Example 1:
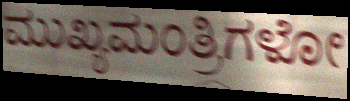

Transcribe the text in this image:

ಮುಖ್ಯಮಂತ್ರಿಗಳೋ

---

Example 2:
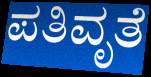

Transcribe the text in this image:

ಪತಿವೃತೆ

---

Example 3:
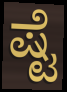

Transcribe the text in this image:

ಷ್ಟೆ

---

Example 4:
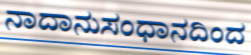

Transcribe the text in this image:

ನಾದಾನುಸಂಧಾನದಿಂದ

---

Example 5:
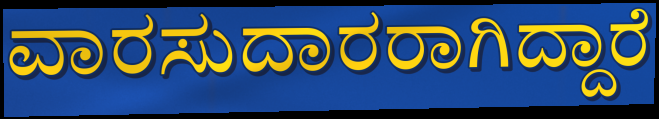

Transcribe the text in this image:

ವಾರಸುದಾರರಾಗಿದ್ದಾರೆ